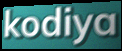
kodiya